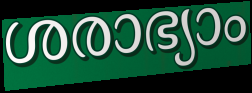
ശരാഭ്യാം